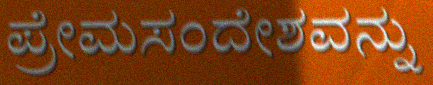
ಪ್ರೇಮಸಂದೇಶವನ್ನು